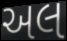
અલ